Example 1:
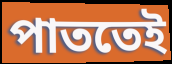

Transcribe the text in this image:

পাততেই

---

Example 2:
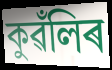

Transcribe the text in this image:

কুৱঁলিৰ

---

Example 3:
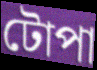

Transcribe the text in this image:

টোপা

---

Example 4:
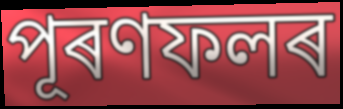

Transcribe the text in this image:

পূৰণফলৰ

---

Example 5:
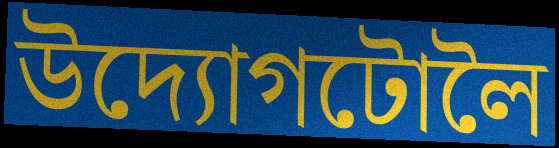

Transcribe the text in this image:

উদ্যোগটোলৈ